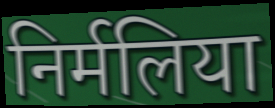
निर्मलिया